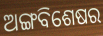
ଅଙ୍ଗବିଶେଷର